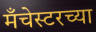
मँचेस्टरच्या